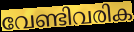
വേണ്ടിവരിക